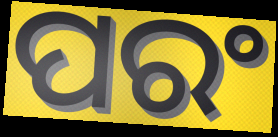
ପରଂ